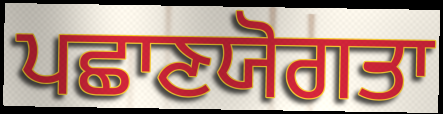
ਪਛਾਣਯੋਗਤਾ